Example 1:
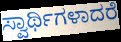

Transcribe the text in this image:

ಸ್ವಾರ್ಥಿಗಳಾದರೆ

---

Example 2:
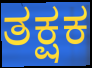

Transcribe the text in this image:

ತಕ್ಷಕ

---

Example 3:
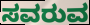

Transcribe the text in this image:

ಸವರುವ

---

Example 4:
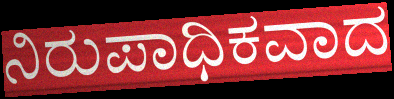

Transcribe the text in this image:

ನಿರುಪಾಧಿಕವಾದ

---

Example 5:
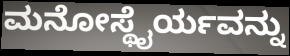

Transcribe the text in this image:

ಮನೋಸ್ಥೈರ್ಯವನ್ನು